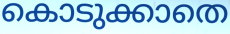
കൊടുക്കാതെ